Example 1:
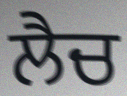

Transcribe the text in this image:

ਲੈਚ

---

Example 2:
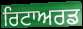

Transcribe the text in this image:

ਰਿਟਾਅਰਡ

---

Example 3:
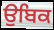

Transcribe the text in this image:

ਉਬਿਕ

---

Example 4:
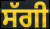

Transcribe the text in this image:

ਸੱਗੀ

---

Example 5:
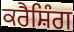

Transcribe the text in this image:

ਕਰੈਸ਼ਿੰਗ